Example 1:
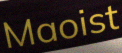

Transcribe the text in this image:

Maoist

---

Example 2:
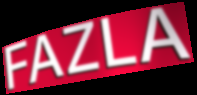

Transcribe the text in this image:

FAZLA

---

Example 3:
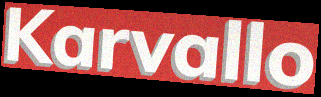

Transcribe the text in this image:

Karvallo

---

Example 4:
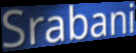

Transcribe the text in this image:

Srabani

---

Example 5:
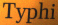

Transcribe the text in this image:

Typhi